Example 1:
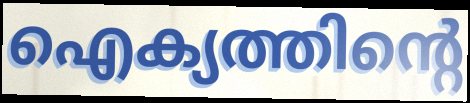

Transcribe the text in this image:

ഐക്യത്തിന്റെ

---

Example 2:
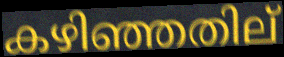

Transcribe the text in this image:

കഴിഞ്ഞതില്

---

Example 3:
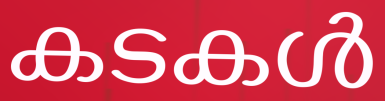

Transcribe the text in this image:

കടകൾ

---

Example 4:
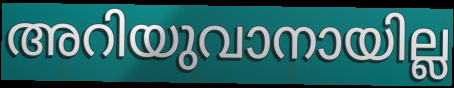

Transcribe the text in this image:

അറിയുവാനായില്ല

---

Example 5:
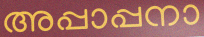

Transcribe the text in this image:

അപ്പാപ്പനാ